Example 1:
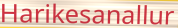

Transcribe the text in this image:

Harikesanallur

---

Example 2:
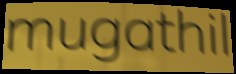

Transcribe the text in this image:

mugathil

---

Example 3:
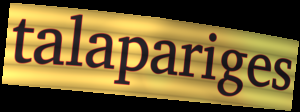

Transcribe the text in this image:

talapariges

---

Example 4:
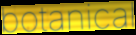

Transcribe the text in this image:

botanical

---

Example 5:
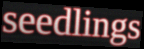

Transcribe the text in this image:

seedlings